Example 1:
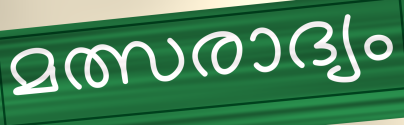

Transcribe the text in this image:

മത്സരാദ്യം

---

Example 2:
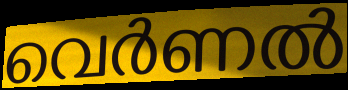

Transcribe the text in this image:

വെർണൽ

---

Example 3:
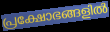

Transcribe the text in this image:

പ്രക്ഷോഭങ്ങളിൽ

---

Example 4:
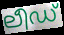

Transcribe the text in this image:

ലീഡ്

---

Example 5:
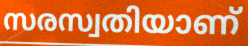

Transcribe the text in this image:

സരസ്വതിയാണ്